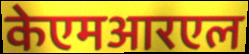
केएमआरएल